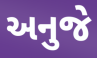
અનુજે